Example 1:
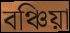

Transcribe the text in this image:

বঞ্চিয়া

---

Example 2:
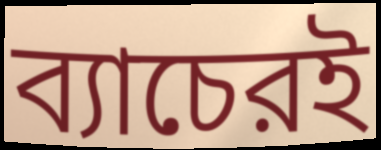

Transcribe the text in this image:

ব্যাচেরই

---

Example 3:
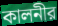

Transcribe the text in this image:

কালনীর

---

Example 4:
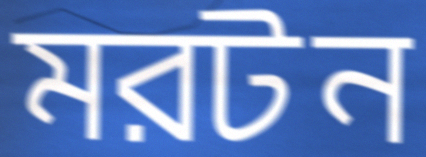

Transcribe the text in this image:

মরটন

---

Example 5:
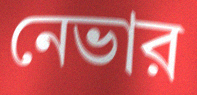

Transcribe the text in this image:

নেভার